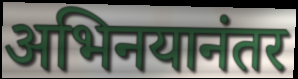
अभिनयानंतर